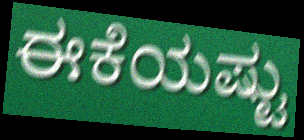
ಈಕೆಯಷ್ಟು